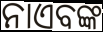
ନାଏବଙ୍କ